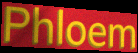
Phloem